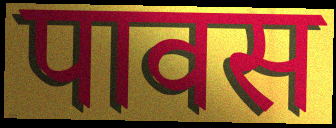
पावस